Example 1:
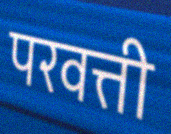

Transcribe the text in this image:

परवत्ती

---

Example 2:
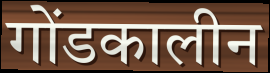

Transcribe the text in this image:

गोंडकालीन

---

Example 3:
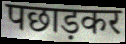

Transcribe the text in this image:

पछाड़कर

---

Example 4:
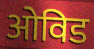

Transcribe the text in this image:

ओविड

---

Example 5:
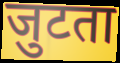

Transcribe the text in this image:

जुटता